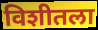
विशीतला